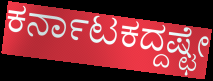
ಕರ್ನಾಟಕದ್ದಷ್ಟೇ